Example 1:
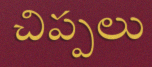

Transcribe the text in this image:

చిప్పలు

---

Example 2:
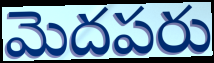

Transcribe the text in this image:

మెదపరు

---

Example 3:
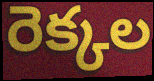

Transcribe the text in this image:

రెక్కల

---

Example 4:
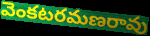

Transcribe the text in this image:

వెంకటరమణరావు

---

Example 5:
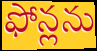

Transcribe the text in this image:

ఫోన్లను